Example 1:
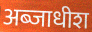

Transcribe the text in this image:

अब्जाधीश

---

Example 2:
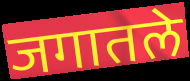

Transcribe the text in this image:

जगातले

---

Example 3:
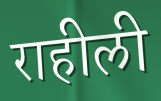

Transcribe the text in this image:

राहीली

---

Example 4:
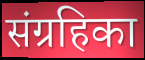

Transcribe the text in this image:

संग्रहिका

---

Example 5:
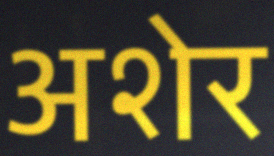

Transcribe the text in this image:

अशेर